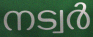
നട്വർ